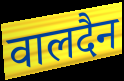
वालदैन